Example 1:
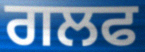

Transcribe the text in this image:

ਗਲਫ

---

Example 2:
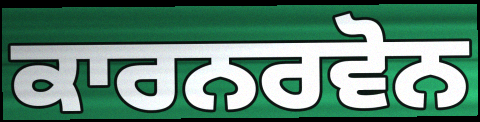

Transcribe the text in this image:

ਕਾਰਨਰਵੋਨ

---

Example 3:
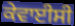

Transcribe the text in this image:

ਕੇਵਾਈਸੀ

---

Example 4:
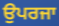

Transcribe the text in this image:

ਉਪਰਜਾ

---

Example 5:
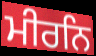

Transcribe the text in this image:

ਮੀਰਨਿ